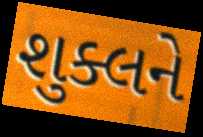
શુક્લને